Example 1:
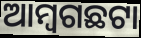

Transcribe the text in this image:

ଆମ୍ବଗଛଟା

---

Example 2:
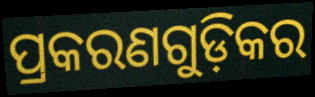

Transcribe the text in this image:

ପ୍ରକରଣଗୁଡ଼ିକର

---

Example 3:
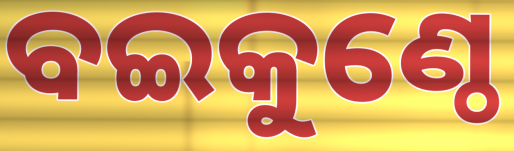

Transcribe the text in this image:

ବଇକୁଣ୍ଠେ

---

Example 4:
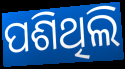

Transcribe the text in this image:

ପଶିଥିଲି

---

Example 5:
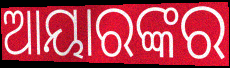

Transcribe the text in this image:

ଆୟାରଙ୍କର